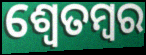
ଶ୍ଵେତମ୍ବର